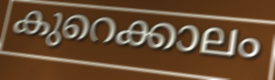
കുറെക്കാലം